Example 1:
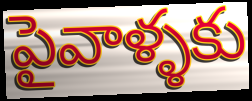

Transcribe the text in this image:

పైవాళ్ళకు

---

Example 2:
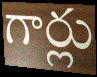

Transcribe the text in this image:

గార్లు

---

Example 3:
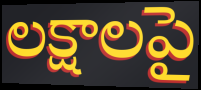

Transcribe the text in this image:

లక్షాలపై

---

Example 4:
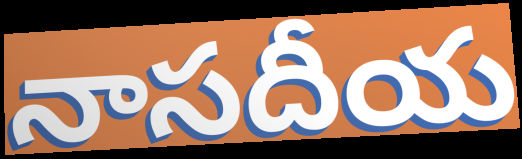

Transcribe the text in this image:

నాసదీయ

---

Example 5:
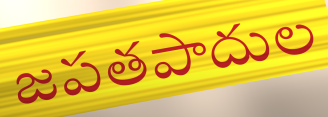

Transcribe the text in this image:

జపతపాదుల